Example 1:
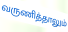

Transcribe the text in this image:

வருணித்தாலும்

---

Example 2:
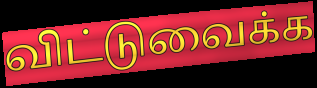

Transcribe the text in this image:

விட்டுவைக்க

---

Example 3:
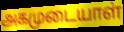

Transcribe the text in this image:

அகமுடையாள்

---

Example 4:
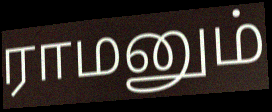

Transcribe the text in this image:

ராமனும்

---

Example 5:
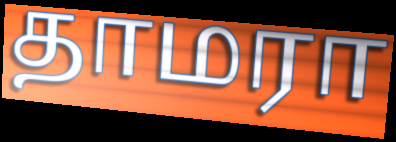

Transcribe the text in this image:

தாமரா